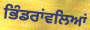
ਭਿੰਡਰਾਂਵਲਿਆਂ